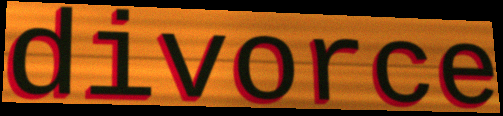
divorce